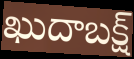
ఖుదాబక్ష్